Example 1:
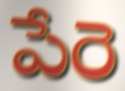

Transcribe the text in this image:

పేరె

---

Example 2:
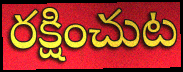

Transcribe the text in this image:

రక్షించుట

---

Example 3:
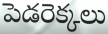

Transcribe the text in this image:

పెడరెక్కలు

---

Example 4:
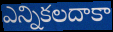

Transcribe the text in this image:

ఎన్నికలదాకా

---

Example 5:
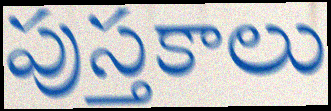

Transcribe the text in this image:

పుస్తకాలు